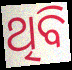
ଥିବି